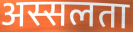
अस्सलता